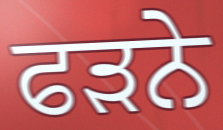
ਫੜਨੇ